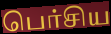
பெர்சிய